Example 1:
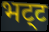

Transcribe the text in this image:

भट्‌ट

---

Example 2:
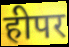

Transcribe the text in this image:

हीपर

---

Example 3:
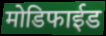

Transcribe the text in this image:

मोडिफाईड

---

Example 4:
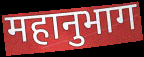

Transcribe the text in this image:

महानुभाग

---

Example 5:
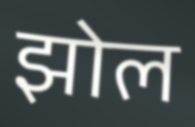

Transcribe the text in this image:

झोल